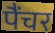
पैंचर